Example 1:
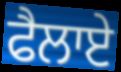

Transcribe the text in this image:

ਫੈਲਾਏ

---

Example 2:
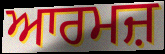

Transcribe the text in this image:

ਆਰਮਜ਼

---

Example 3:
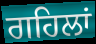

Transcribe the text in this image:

ਗਹਿਲਾਂ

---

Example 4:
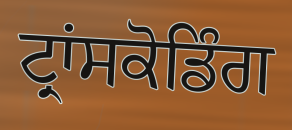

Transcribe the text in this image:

ਟ੍ਰਾਂਸਕੋਡਿੰਗ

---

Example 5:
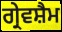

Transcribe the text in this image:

ਗ੍ਰੇਵਸ਼ੈਮ